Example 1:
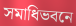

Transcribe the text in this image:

সমাধিভবনে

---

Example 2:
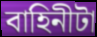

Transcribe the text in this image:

বাহিনীটা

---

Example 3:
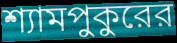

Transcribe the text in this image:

শ্যামপুকুরের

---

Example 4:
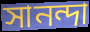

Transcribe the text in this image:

সানন্দা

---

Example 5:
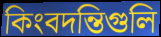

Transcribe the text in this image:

কিংবদন্তিগুলি